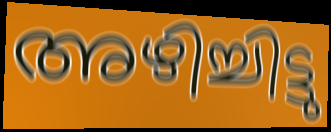
അഴിച്ചിട്ടു